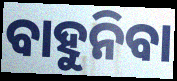
ବାହୁନିବା